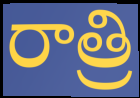
రాత్రి